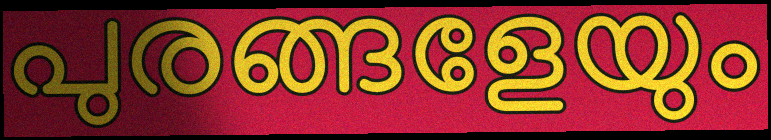
പുരങ്ങളേയും